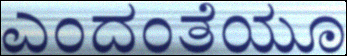
ಎಂದಂತೆಯೂ